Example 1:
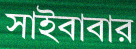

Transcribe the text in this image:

সাইবাবার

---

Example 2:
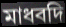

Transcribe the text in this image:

মাধবদি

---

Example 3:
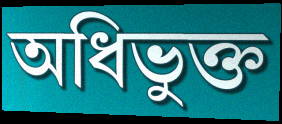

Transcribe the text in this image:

অধিভুক্ত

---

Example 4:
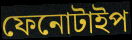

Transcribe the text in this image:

ফেনোটাইপ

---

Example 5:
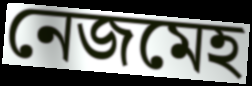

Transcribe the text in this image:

নেজমেহ